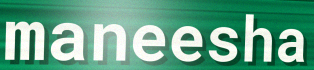
maneesha